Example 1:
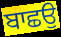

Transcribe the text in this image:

ਬਾਛਉ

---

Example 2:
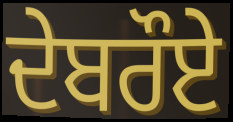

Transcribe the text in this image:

ਦੇਬਰੌਏ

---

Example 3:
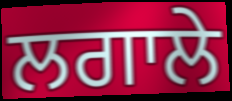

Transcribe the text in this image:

ਲਗਾਲੇ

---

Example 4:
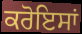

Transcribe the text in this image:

ਕਰੋਇਸਾਂ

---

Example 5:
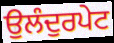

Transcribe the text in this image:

ਉਲੰਦੁਰਪੇਟ